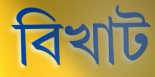
বিখাট